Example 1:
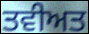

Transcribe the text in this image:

ਤਵੀਅਤ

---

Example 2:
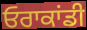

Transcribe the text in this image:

ਓਰਾਕਾਂਡੀ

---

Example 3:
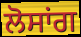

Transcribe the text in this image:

ਲੋਸਾਂਗ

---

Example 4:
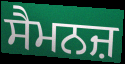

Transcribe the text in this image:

ਸੈਮਨਜ਼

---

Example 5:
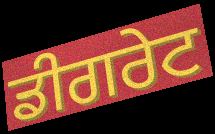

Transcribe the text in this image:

ਡੀਗਰੇਟ